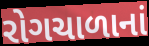
રોગચાળાનાં